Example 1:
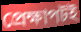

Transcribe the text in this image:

প্রেক্ষাপটই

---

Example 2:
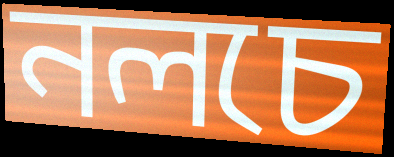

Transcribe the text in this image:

নলচে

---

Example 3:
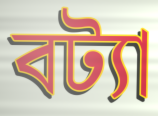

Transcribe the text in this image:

বট্যা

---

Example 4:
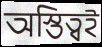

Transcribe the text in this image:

অস্তিত্বই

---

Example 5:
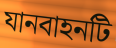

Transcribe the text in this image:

যানবাহনটি